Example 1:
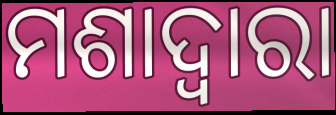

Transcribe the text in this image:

ମଶାଦ୍ୱାରା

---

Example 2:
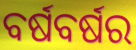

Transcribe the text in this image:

ବର୍ଷବର୍ଷର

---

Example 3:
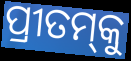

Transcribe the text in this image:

ପ୍ରୀତମ୍‌କୁ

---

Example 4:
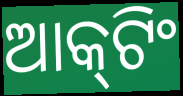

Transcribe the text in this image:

ଆକ୍‌ଟିଂ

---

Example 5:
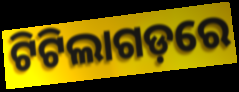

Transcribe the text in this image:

ଟିଟିଲାଗଡ଼ରେ